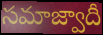
సమాజ్వాదీ